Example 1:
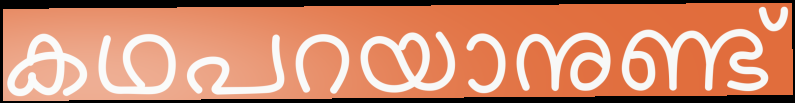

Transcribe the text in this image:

കഥപറയാനുണ്ട്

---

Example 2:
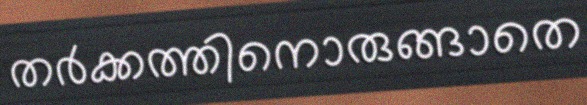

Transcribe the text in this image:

തർക്കത്തിനൊരുങ്ങാതെ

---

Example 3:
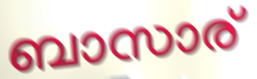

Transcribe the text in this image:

ബാസാര്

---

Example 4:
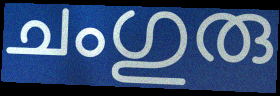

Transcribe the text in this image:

ചംഗുരു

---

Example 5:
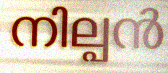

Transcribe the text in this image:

നില്പൻ